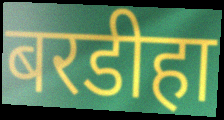
बरडीहा